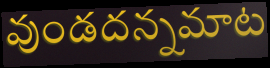
వుండదన్నమాట